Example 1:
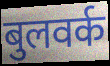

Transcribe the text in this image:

बुलवर्क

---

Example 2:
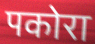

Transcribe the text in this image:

पकोरा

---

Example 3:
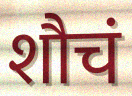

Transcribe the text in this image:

शौचं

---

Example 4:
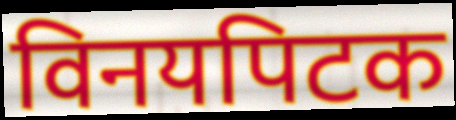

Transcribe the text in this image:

विनयपिटक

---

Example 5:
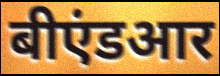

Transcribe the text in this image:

बीएंडआर